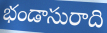
భండాసురాది